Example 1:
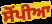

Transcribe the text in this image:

ਸੋਂਪੀਆ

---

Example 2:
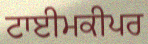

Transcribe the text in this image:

ਟਾਈਮਕੀਪਰ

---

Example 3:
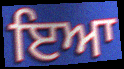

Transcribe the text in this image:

ਇਆ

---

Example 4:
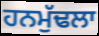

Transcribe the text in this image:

ਹਨਮੁੱਢਲਾ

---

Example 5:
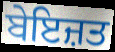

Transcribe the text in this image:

ਬੇਇਜ਼ਤ